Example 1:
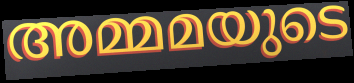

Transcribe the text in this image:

അമ്മമയുടെ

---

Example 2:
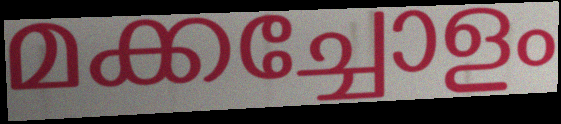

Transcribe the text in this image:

മക്കച്ചോളം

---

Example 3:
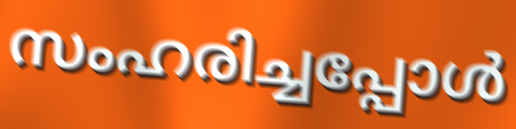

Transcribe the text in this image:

സംഹരിച്ചപ്പോൾ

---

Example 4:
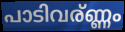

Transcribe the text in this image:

പാടിവര്ണ്ണം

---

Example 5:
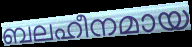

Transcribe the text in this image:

ബലഹീനമായ